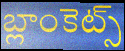
బ్లాంకెట్స్